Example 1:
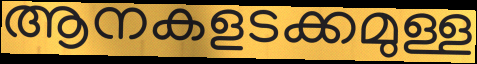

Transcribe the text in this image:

ആനകളടക്കമുള്ള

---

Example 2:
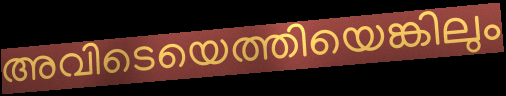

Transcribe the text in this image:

അവിടെയെത്തിയെങ്കിലും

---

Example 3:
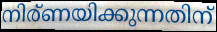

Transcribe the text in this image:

നിര്ണയിക്കുന്നതിന്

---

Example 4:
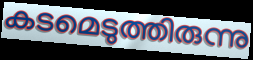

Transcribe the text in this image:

കടമെടുത്തിരുന്നു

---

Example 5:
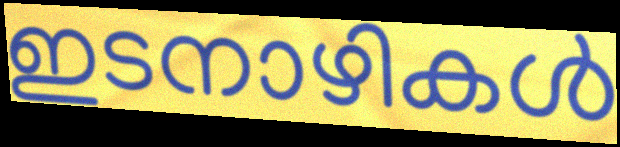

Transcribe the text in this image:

ഇടനാഴികൾ